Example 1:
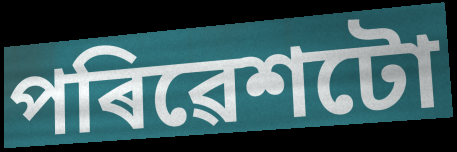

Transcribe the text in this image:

পৰিৱেশটো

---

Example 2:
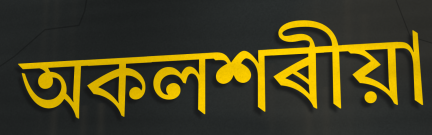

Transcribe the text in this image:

অকলশৰীয়া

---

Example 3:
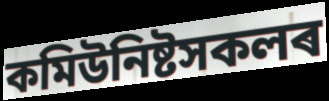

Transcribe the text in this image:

কমিউনিষ্টসকলৰ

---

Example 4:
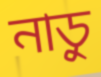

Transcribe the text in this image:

নাডু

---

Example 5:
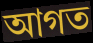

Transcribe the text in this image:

আগত